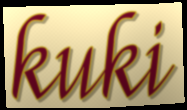
kuki